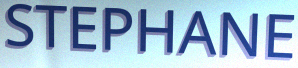
STEPHANE